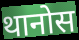
थानोस